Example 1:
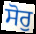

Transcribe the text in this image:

ਸੋਰੁ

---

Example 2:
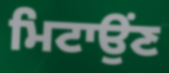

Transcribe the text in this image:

ਮਿਟਾਉਂਣ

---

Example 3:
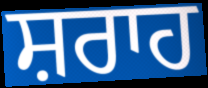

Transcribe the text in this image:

ਸ਼ਰਾਹ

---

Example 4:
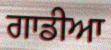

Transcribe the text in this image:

ਗਾਡੀਆ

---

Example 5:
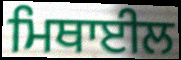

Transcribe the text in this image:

ਮਿਥਾਈਲ